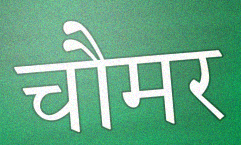
चौमर